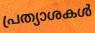
പ്രത്യാശകൾ